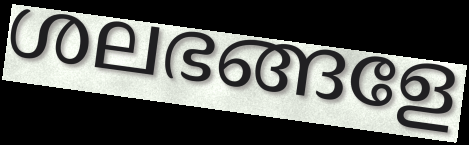
ശലഭങ്ങളേ